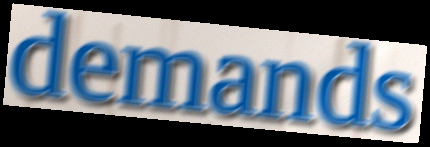
demands